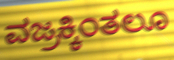
ವಜ್ರಕ್ಕಿಂತಲೂ